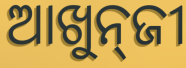
ଆଖୁନ୍‌ଜୀ